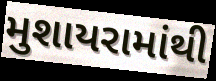
મુશાયરામાંથી